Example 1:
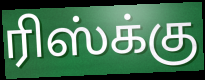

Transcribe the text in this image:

ரிஸ்க்கு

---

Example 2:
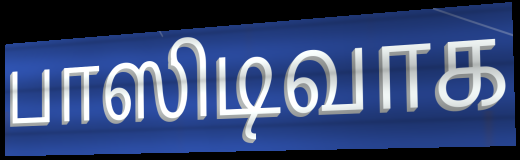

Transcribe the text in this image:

பாஸிடிவாக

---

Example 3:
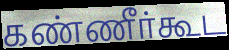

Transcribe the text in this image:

கண்ணீர்கூட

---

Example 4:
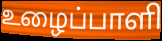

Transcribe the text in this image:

உழைப்பாளி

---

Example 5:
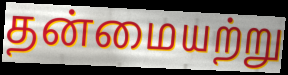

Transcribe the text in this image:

தன்மையற்று